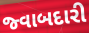
જ્વાબદારી